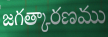
జగత్కారణము